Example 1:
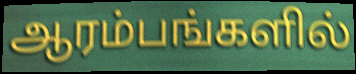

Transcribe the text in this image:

ஆரம்பங்களில்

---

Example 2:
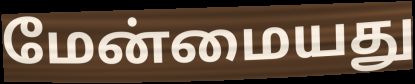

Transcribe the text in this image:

மேன்மையது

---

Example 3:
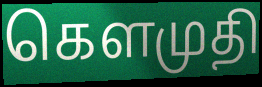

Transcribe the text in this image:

கௌமுதி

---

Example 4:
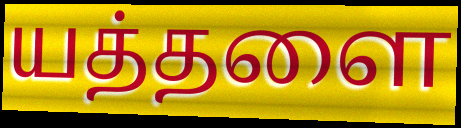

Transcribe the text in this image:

யத்தளை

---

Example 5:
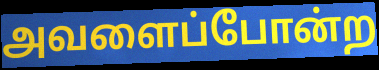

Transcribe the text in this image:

அவளைப்போன்ற